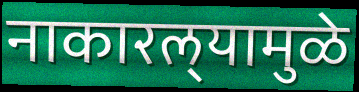
नाकारल्यामुळे